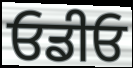
ਓਡੀਓ